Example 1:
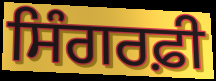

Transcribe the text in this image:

ਸਿੰਗਰਫ਼ੀ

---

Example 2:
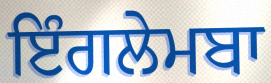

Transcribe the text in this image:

ਇੰਗਲੇਮਬਾ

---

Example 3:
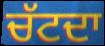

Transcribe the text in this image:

ਚੱਟਦਾ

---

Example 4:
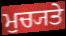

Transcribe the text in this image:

ਮੁਚ੍ਯਤੇ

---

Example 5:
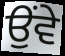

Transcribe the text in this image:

ਉੰਵੇ